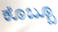
ಕೊಬ್ಬೂ